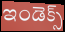
ఇండెక్స్